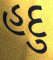
હદુ